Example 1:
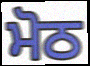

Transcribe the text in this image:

ਮੋਠ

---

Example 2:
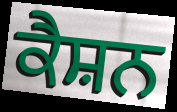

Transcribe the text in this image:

ਕੈਸ਼ਨ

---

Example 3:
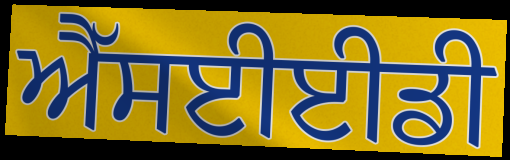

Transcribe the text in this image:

ਐੱਸਈਈਡੀ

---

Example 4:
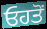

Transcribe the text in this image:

ਓਹਤੋਂ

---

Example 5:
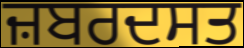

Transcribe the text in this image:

ਜ਼ਬਰਦਸਤ